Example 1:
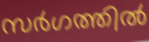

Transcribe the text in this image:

സർഗത്തിൽ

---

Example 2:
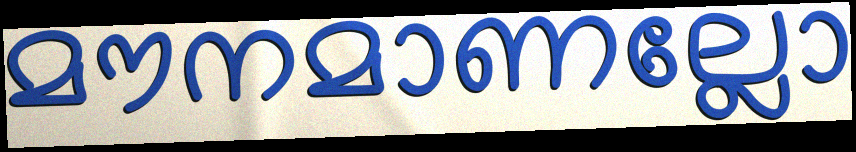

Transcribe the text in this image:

മൗനമാണല്ലോ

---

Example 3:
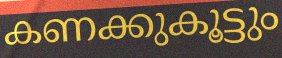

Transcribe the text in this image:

കണക്കുകൂട്ടും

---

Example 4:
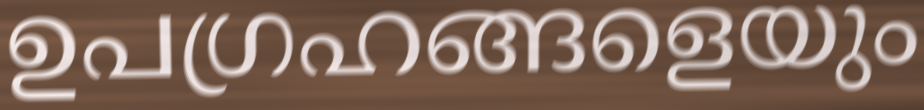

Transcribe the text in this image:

ഉപഗ്രഹങ്ങളെയും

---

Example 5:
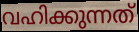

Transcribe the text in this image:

വഹിക്കുന്നത്